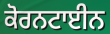
ਕੋਰਨਟਾਈਨ